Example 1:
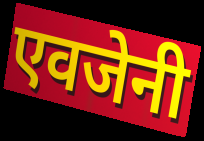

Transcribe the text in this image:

एवजेनी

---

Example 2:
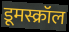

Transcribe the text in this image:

डूमस्क्रॉल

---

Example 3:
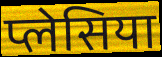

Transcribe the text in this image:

प्लेसिया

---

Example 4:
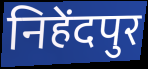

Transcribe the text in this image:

निहेंदपुर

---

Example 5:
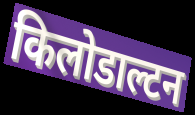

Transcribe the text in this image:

किलोडाल्टन